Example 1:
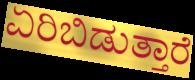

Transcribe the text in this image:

ಏರಿಬಿಡುತ್ತಾರೆ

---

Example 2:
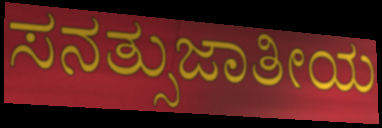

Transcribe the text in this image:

ಸನತ್ಸುಜಾತೀಯ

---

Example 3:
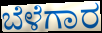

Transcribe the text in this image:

ಬೆಳೆಗಾರ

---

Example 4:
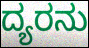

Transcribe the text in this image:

ದ್ಯರನು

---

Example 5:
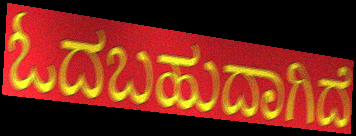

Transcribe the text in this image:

ಓದಬಹುದಾಗಿದೆ